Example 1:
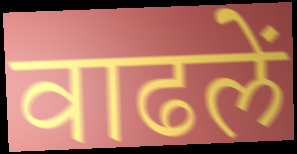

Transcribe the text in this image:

वाढलें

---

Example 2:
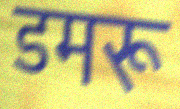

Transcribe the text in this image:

डमरू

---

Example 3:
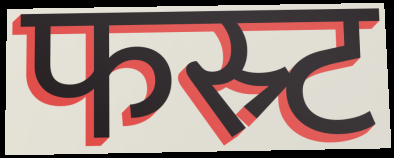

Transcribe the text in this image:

फस्र्ट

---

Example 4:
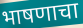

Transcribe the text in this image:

भाषणाचा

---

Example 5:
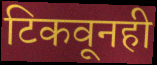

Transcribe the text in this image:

टिकवूनही